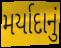
મર્યાદાનું